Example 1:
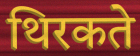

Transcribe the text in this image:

थिरकते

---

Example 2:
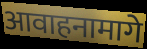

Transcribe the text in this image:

आवाहनामागे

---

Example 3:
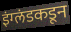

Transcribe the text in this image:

इंग्लंडकडून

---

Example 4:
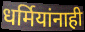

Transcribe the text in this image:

धर्मियांनाही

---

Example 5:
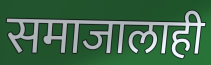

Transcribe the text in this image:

समाजालाही